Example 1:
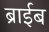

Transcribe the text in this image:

ब्राईब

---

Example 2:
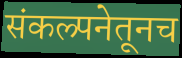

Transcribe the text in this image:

संकल्पनेतूनच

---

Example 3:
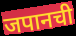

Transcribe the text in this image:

जपानची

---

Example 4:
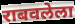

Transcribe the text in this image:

राबवलेला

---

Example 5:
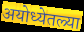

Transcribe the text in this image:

अयोध्येतल्या